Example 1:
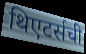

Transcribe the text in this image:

थिएटर्सची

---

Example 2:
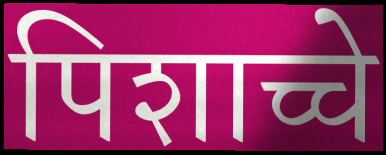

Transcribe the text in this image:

पिशाच्चे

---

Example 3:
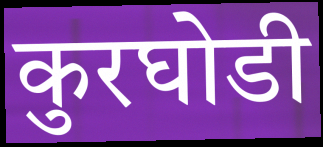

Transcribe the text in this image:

कुरघोडी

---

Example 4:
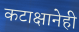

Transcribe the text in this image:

कटाक्षानेही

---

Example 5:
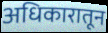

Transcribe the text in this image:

अधिकारातून